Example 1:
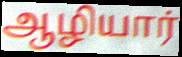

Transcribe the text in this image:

ஆழியார்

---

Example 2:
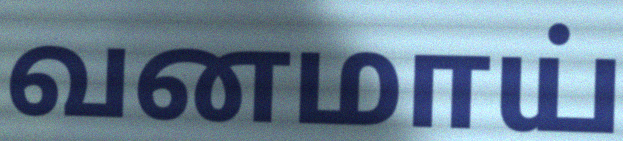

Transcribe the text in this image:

வனமாய்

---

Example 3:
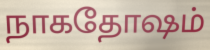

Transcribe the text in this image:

நாகதோஷம்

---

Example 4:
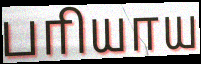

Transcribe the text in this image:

பரியாய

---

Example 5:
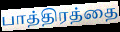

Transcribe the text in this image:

பாத்திரத்தை